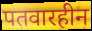
पतवारहीन